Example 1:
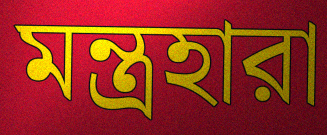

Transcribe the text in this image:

মন্ত্রহারা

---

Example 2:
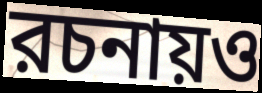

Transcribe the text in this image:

রচনায়ও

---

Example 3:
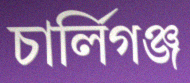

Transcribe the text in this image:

চার্লিগঞ্জ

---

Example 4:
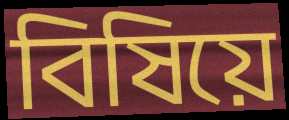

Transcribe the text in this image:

বিষিয়ে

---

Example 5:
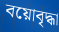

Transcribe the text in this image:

বয়োবৃদ্ধা